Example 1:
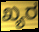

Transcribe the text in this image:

ಖ್ಯರ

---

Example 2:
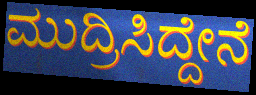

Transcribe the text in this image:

ಮುದ್ರಿಸಿದ್ದೇನೆ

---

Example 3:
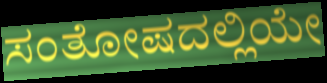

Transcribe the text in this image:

ಸಂತೋಷದಲ್ಲಿಯೇ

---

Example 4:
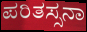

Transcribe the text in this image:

ಪರಿತಸ್ಸನಾ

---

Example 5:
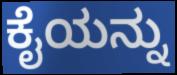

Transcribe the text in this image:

ಕೈಯನ್ನು